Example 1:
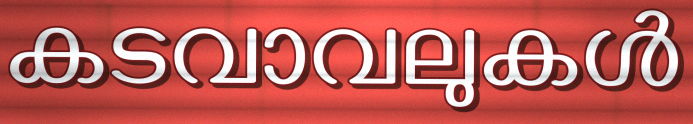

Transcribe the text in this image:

കടവാവലുകൾ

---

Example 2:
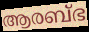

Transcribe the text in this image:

ആരബ്ഭ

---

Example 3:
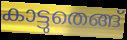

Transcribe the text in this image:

കാട്ടുതെങ്ങ്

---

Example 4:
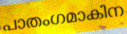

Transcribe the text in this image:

പാതംഗമാകിന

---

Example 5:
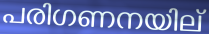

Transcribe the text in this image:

പരിഗണനയില്